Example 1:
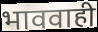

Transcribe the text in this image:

भाववाही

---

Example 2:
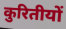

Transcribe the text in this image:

कुरितीयों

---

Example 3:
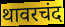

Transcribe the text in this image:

थावरचंद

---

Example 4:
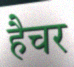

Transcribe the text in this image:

हैचर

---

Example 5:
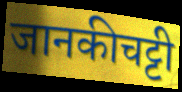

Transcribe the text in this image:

जानकीचट्टी